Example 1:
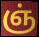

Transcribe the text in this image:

ஞ்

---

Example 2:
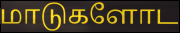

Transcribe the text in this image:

மாடுகளோட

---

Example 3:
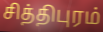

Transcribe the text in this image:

சித்திபுரம்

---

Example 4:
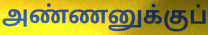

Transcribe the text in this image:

அண்ணனுக்குப்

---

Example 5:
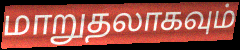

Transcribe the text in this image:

மாறுதலாகவும்